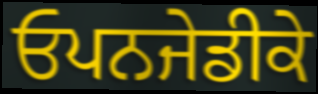
ਓਪਨਜੇਡੀਕੇ